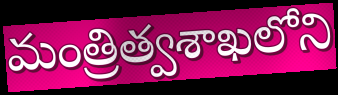
మంత్రిత్వశాఖలోని